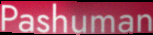
Pashuman